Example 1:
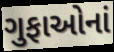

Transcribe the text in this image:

ગુફાઓનાં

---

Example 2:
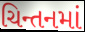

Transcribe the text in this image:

ચિન્તનમાં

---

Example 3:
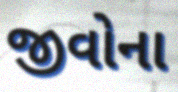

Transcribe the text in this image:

જીવોના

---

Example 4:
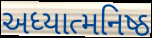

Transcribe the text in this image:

અધ્યાત્મનિષ્ઠ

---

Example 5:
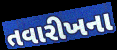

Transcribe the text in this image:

તવારીખના